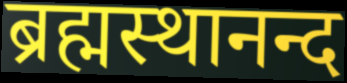
ब्रह्मस्थानन्द